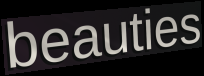
beauties